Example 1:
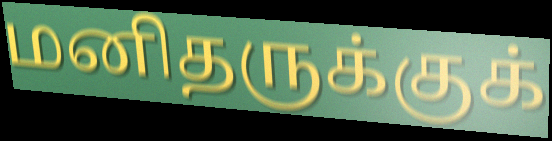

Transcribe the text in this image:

மனிதருக்குக்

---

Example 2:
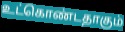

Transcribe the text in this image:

உட்கொண்டதாகும்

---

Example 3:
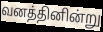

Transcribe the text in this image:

வனத்தினின்று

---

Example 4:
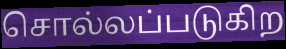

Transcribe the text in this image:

சொல்லப்படுகிற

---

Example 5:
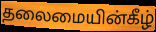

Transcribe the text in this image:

தலைமையின்கீழ்